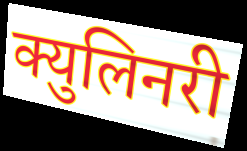
क्युलिनरी